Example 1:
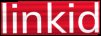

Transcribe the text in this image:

linkid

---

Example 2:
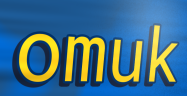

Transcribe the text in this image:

omuk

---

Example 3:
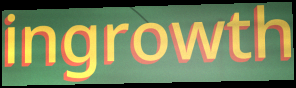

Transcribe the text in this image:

ingrowth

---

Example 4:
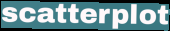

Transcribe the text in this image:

scatterplot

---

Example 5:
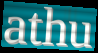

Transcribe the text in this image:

athu